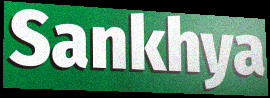
Sankhya